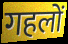
गहलों